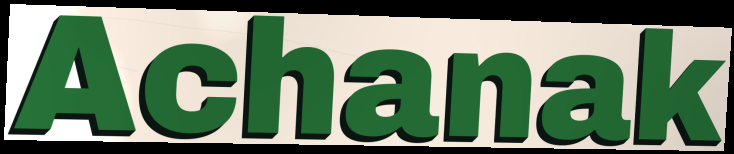
Achanak